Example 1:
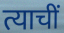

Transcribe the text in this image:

त्याचीं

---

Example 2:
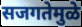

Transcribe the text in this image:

सजगतेमुळे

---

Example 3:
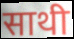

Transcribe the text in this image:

साथी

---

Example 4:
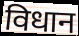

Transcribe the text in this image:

विधान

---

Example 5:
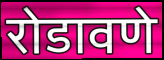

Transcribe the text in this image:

रोडावणे